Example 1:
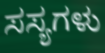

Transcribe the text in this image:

ಸಸ್ಯಗಳು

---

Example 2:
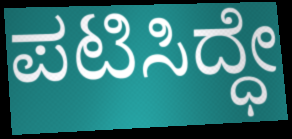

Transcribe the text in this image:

ಪಟಿಸಿದ್ಧೇ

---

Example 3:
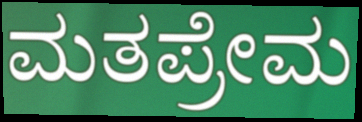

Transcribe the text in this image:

ಮತಪ್ರೇಮ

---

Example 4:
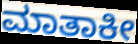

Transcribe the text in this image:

ಮಾತಾಕೀ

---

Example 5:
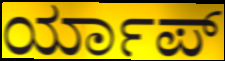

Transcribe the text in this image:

ರ್ಯಾಪ್